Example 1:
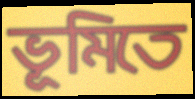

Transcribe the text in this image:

ভূমিতে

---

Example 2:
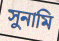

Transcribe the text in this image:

সুনামি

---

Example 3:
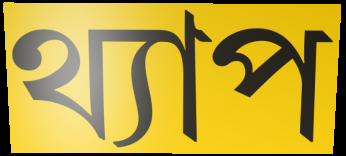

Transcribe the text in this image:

থ্যাপ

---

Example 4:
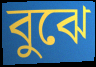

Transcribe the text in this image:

বুঝে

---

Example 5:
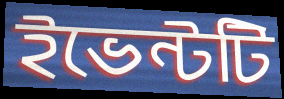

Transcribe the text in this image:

ইভেন্টটি